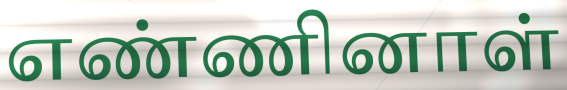
எண்ணினாள்